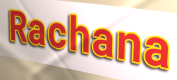
Rachana